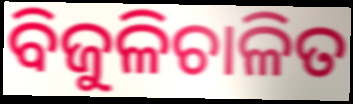
ବିଜୁଳିଚାଳିତ